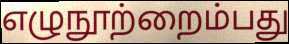
எழுநூற்றைம்பது